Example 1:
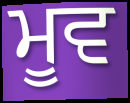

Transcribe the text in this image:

ਮੂਵ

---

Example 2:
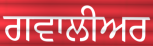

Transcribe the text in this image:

ਗਵਾਲੀਅਰ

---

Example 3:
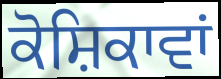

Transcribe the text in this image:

ਕੋਸ਼ਿਕਾਵਾਂ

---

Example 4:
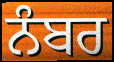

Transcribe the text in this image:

ਨੰਬਰ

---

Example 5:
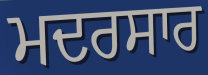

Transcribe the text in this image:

ਮਦਰਸਾਰ